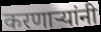
करणार्‍यांनी